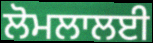
ਲੋਮਲਾਲਈ